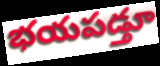
భయపడ్తూ